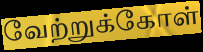
வேற்றுக்கோள்